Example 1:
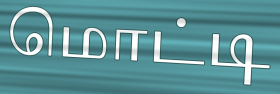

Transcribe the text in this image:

மொட்டி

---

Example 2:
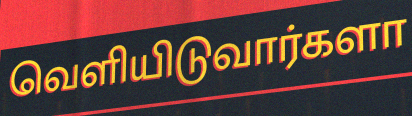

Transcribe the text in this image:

வெளியிடுவார்களா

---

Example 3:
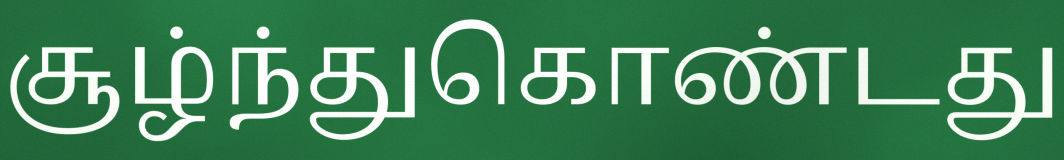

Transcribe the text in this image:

சூழ்ந்துகொண்டது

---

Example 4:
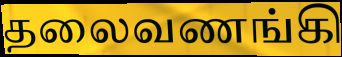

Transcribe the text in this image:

தலைவணங்கி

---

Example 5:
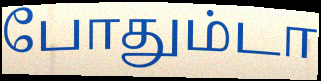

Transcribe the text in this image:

போதும்டா